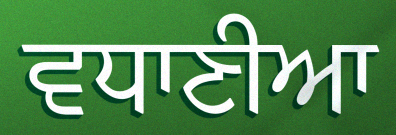
ਵਧਾਣੀਆ